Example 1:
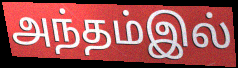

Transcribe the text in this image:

அந்தம்இல்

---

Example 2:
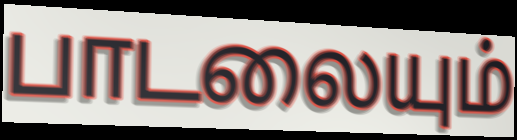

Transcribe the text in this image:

பாடலையும்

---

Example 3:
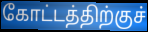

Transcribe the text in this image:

கோட்டத்திற்குச்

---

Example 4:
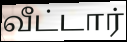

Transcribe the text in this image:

வீட்டார்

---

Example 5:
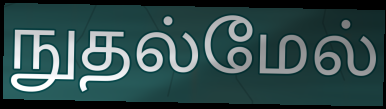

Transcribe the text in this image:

நுதல்மேல்